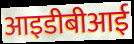
आइडीबीआई